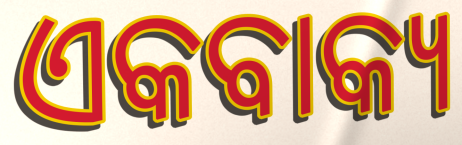
ଏକବାକ୍ୟ